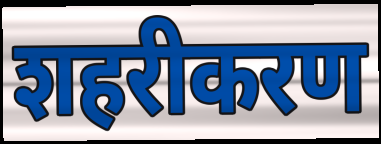
शहरीकरण